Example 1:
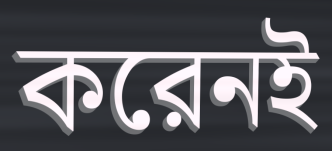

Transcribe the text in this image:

করেনই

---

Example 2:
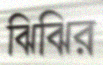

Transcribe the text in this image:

ঝিঝির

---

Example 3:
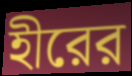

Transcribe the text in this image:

হীরের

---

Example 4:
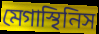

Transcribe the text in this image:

মেগাস্থিনিস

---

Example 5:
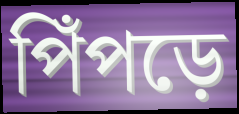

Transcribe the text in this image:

পিঁপড়ে